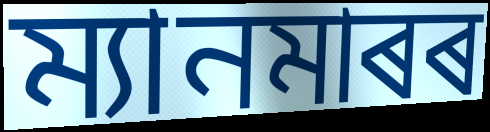
ম্যানমাৰৰ